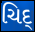
ચિદ્